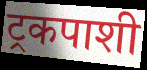
ट्रकपाशी